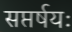
सप्तर्षयः